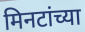
मिनटांच्या